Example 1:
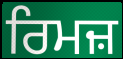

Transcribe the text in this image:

ਰਿਮਜ਼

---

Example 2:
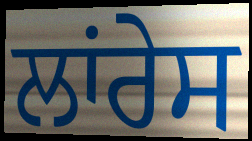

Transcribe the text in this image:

ਲਾਂਰੇਸ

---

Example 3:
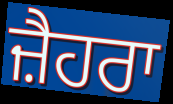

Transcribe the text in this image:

ਜ਼ੈਹਰਾ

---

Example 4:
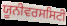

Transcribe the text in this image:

ਯੂਨੀਵਰਸਸਿਟੀ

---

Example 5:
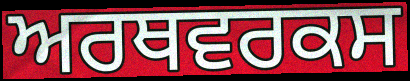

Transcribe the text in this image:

ਅਰਥਵਰਕਸ